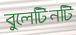
বুলেটিনটি